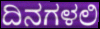
ದಿನಗಳಲಿ